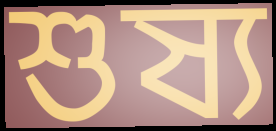
শুষ্য